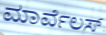
ಮಾರ್ವೆಲಸ್